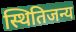
स्थितिजन्य